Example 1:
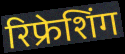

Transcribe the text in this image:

रिफ्रेशिंग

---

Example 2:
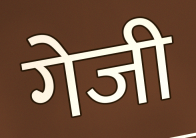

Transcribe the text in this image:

गेजी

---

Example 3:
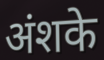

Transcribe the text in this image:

अंशके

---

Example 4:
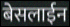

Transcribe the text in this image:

बेसलाईन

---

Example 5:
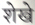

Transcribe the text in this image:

शेखे